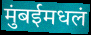
मुंबईमधलं